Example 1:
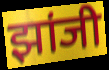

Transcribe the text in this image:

झांजी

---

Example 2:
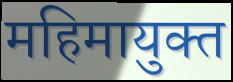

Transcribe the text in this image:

महिमायुक्‍त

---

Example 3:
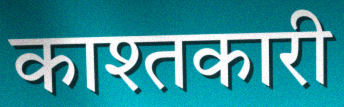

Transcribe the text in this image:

काश्तकारी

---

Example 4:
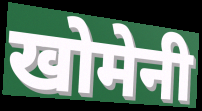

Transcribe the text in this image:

खोमेनी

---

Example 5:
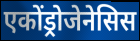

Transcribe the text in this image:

एकोंड्रोजेनेसिस